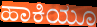
ಹಾಕಿಯೂ